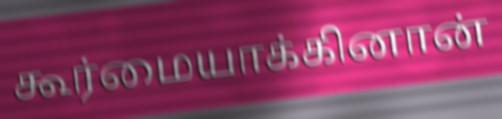
கூர்மையாக்கினான்